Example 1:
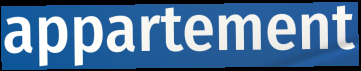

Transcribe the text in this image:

appartement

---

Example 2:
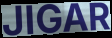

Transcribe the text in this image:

JIGAR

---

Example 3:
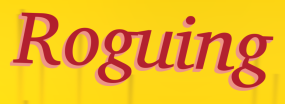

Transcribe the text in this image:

Roguing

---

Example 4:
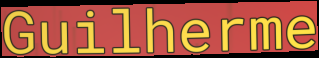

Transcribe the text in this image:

Guilherme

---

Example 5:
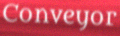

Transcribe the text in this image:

Conveyor